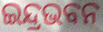
ଇନ୍ଦ୍ରଭବନ